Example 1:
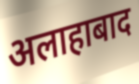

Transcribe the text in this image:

अलाहाबाद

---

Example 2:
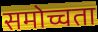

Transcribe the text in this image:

समोच्चता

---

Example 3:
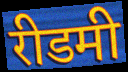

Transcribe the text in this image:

रीडमी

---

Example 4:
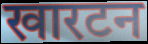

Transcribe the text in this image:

खारटन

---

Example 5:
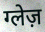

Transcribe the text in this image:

ग्लेज़